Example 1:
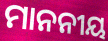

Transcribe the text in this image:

ମାନନୀୟ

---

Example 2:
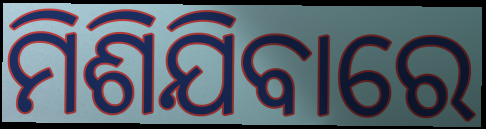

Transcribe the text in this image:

ମିଶିଯିବାରେ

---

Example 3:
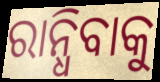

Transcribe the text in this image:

ରାନ୍ଧିବାକୁ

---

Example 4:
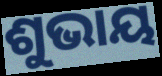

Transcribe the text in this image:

ଶୁଭାୟ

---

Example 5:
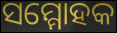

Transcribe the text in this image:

ସମ୍ମୋହକ